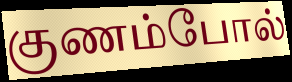
குணம்போல்